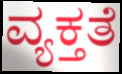
ವ್ಯಕ್ತತೆ